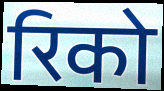
रिको